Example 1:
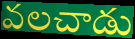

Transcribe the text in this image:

వలచాడు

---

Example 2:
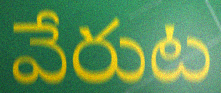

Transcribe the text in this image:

వేరుట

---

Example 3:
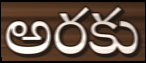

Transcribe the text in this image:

అరకు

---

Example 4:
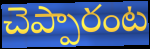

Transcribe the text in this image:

చెప్పారంట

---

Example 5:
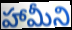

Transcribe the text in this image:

హామీని